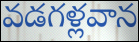
వడగళ్లవాన